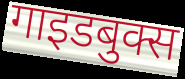
गाइडबुक्स